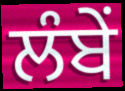
ਲੰਬੇਂ